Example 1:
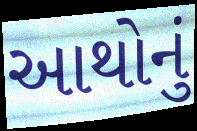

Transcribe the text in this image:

આથોનું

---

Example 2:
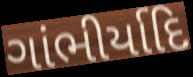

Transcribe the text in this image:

ગાંભીર્યાદિ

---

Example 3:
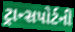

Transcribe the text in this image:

ટ્રાન્સપોર્ટની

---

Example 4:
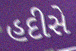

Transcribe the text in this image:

હદીસે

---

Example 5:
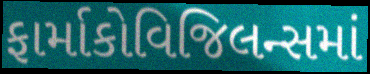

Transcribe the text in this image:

ફાર્માકોવિજિલન્સમાં